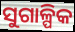
ସୁଗାଳ୍ପିକ